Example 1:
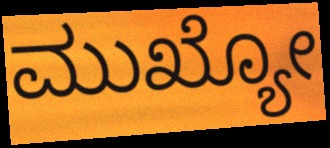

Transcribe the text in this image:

ಮುಖ್ಯೋ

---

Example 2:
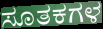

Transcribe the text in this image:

ಸೂತಕಗಳ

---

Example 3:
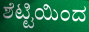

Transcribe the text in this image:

ಶೆಟ್ಟಿಯಿಂದ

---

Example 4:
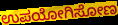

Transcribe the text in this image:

ಉಪಯೋಗಿಸೋಣ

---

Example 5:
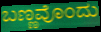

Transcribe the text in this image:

ಬಣ್ಣವೊಂದು